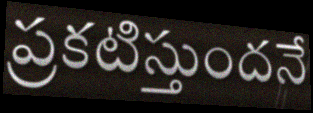
ప్రకటిస్తుందనే